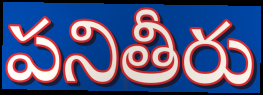
పనితీరు